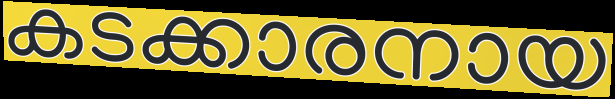
കടക്കാരനായ